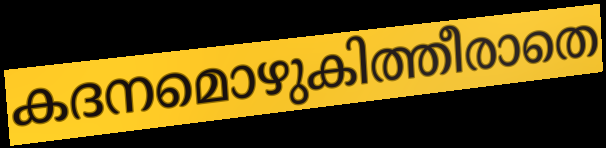
കദനമൊഴുകിത്തീരാതെ